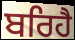
ਬਰਿਹੈ